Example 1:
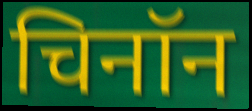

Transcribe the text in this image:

चिनॉन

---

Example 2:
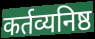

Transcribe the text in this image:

कर्तव्यनिष्ठ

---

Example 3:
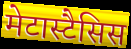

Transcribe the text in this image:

मेटास्टैसिस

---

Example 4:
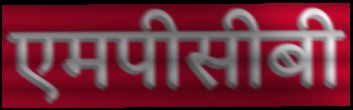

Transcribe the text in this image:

एमपीसीबी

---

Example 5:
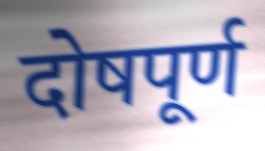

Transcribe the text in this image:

दोषपूर्ण